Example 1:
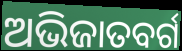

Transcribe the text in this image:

ଅଭିଜାତବର୍ଗ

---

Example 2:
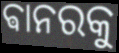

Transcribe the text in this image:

ଵାନରକୁ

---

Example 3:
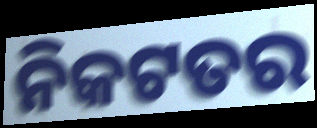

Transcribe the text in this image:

ନିକଟତର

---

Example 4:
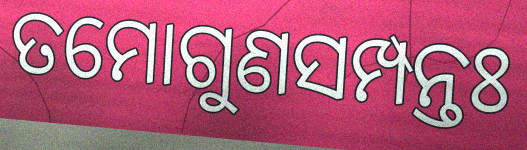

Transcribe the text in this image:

ତମୋଗୁଣସମ୍ପନ୍ତଃ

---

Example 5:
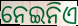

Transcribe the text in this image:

ନେଇନିଏ